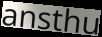
ansthu